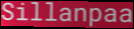
Sillanpaa